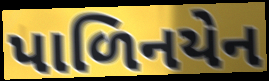
પાળિનયેન